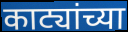
काट्यांच्या